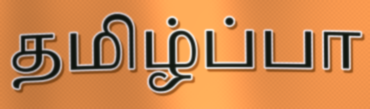
தமிழ்ப்பா